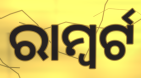
ରାମ୍ବର୍ଟ